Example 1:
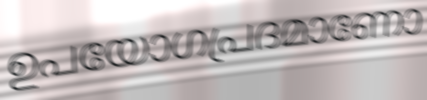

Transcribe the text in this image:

ഉപയോഗപ്രദമാണോ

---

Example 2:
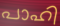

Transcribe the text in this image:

പാഹി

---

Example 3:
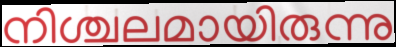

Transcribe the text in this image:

നിശ്ചലമായിരുന്നു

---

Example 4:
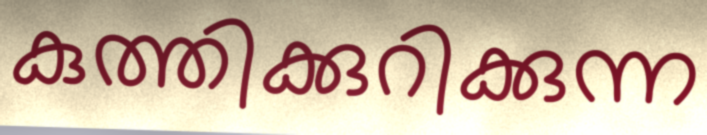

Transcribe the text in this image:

കുത്തിക്കുറിക്കുന്ന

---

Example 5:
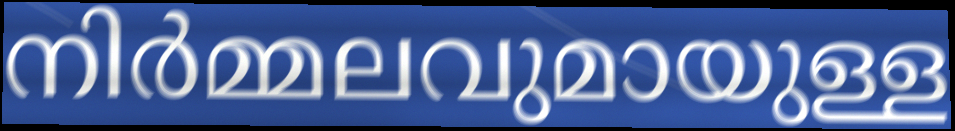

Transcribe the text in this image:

നിർമ്മലവുമായുള്ള